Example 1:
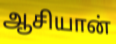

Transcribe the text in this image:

ஆசியான்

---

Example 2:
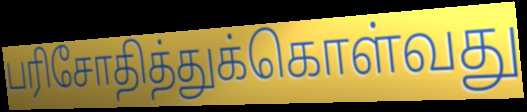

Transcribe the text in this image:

பரிசோதித்துக்கொள்வது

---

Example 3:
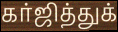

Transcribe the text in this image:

கர்ஜித்துக்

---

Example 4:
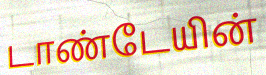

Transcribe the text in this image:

டாண்டேயின்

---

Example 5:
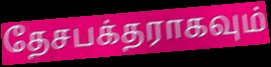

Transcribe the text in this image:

தேசபக்தராகவும்